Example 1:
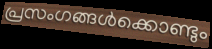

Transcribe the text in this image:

പ്രസംഗങ്ങൾക്കൊണ്ടും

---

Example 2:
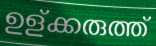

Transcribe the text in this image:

ഉള്ക്കരുത്ത്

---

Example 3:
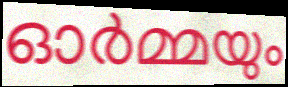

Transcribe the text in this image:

ഓർമ്മയും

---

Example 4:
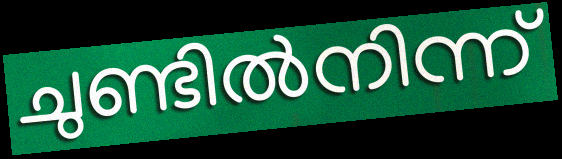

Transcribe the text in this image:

ചുണ്ടിൽനിന്ന്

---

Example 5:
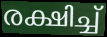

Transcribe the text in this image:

രക്ഷിച്ച്